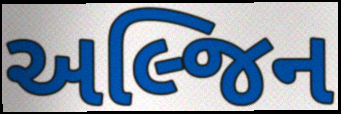
અલ્જિન